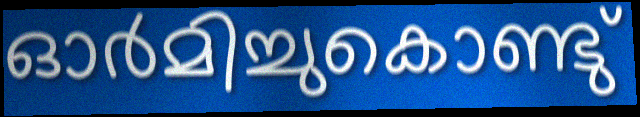
ഓർമിച്ചുകൊണ്ടു്